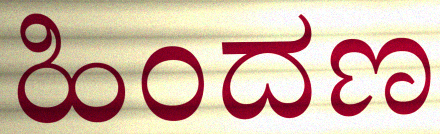
ಹಿಂದಣ